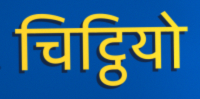
चिट्ठियो